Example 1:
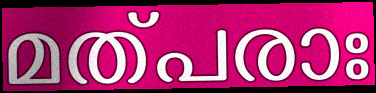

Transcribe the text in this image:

മത്പരാഃ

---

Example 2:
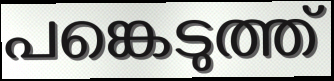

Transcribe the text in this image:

പങ്കെടുത്ത്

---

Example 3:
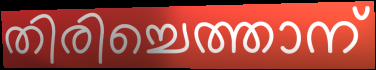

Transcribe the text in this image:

തിരിച്ചെത്താന്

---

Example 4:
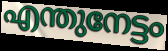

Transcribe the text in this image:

എന്തുനേട്ടം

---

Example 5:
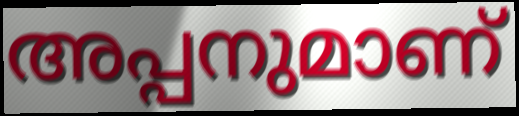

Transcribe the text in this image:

അപ്പനുമാണ്